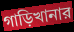
গাড়িখানার